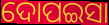
ଦୋପଇସା